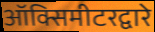
ऑक्सिमीटरद्वारे